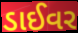
ડાઈવર